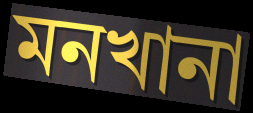
মনখানা